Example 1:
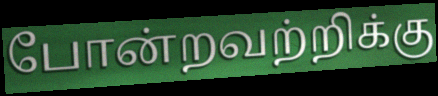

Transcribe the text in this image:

போன்றவற்றிக்கு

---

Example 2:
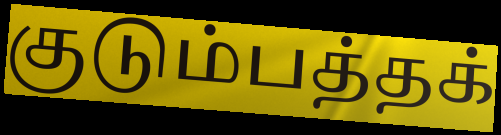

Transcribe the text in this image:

குடும்பத்தக்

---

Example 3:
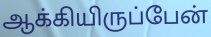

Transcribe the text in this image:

ஆக்கியிருப்பேன்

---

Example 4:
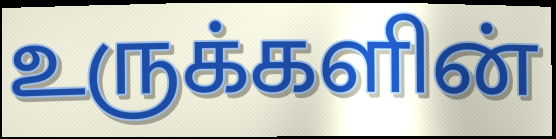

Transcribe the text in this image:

உருக்களின்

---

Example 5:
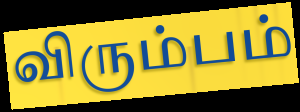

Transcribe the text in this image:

விரும்பம்